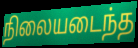
நிலையடைந்த